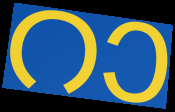
റാ